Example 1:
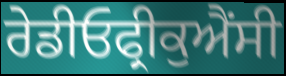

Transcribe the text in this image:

ਰੇਡੀਓਫ੍ਰੀਕੁਐਂਸੀ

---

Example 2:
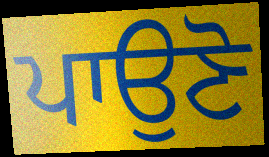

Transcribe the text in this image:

ਪਾਉਣੋ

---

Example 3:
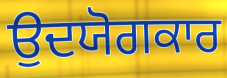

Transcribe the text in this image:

ਉਦਯੋਗਕਾਰ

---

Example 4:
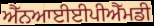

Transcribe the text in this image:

ਐੱਨਆਈਈਪੀਐੱਮਡੀ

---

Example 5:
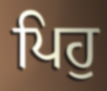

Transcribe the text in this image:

ਪਿਹੁ